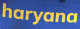
haryana